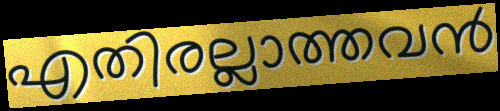
എതിരല്ലാത്തവൻ